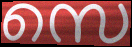
സെ